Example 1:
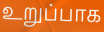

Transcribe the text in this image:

உறுப்பாக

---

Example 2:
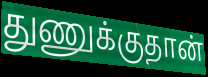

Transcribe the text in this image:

துணுக்குதான்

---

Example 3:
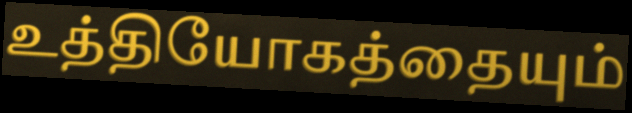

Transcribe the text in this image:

உத்தியோகத்தையும்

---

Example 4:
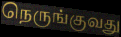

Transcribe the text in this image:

நெருங்குவது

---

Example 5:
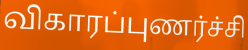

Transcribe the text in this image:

விகாரப்புணர்ச்சி